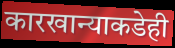
कारखान्याकडेही